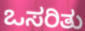
ಒಸರಿತು